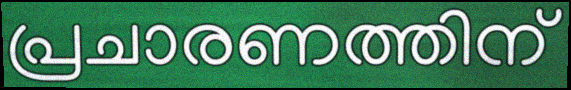
പ്രചാരണത്തിന്